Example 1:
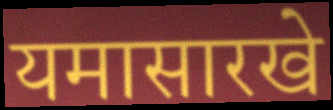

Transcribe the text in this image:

यमासारखे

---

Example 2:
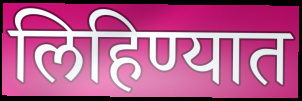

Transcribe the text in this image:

लिहिण्यात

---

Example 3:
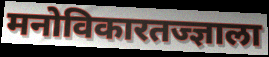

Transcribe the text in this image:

मनोविकारतज्ज्ञाला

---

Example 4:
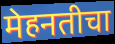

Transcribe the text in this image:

मेहनतीचा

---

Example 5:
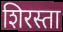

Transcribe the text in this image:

शिरस्ता